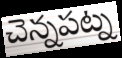
చెన్నపట్న